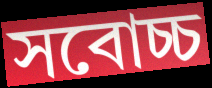
সবোচ্চ